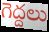
గెద్దలు